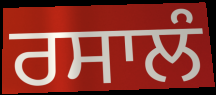
ਰਸਾਲੰ